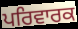
ਪਰਿਵਾਰਕ